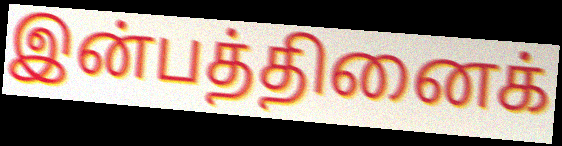
இன்பத்தினைக்